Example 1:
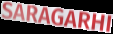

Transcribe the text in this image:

SARAGARHI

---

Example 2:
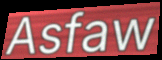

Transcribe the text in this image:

Asfaw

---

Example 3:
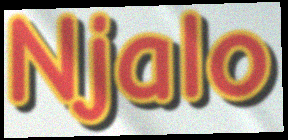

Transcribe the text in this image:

Njalo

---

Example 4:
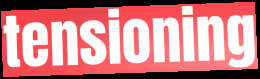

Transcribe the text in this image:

tensioning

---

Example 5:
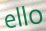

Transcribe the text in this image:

ello